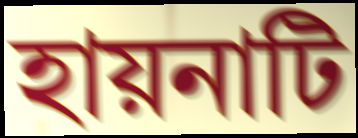
হায়নাটি